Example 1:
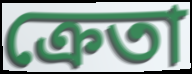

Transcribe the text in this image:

ক্রেতা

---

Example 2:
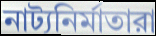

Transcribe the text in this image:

নাট্যনির্মাতারা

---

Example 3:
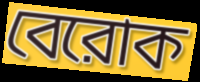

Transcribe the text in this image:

বেরোক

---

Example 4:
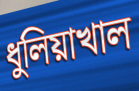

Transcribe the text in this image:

ধুলিয়াখাল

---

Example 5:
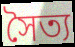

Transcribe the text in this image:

সৈত্য